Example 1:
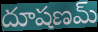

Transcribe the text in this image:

దూషణమ్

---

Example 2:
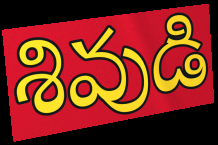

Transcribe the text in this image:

శివుడి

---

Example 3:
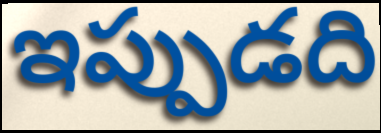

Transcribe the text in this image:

ఇప్పుడది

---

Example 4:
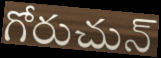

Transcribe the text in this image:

గోరుచున్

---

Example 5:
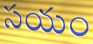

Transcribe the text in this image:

సయం